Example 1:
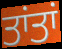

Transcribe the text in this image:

ਤਾਂਤਾਂ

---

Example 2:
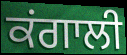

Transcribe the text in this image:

ਕਂਗਾਲੀ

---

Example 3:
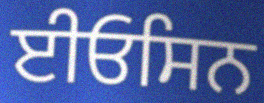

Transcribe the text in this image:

ਈਓਸਿਨ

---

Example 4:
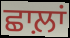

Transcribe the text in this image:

ਛਾਲ਼ਾਂ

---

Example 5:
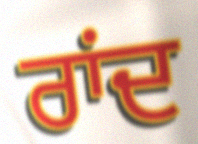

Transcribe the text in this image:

ਰਾਂਦ